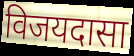
विजयदासा